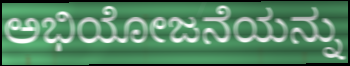
ಅಭಿಯೋಜನೆಯನ್ನು